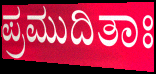
ಪ್ರಮುದಿತಾಃ